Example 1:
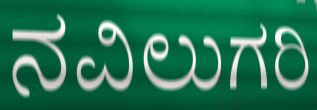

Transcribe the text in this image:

ನವಿಲುಗರಿ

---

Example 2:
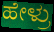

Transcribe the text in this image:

ಹೇಳ್ರು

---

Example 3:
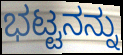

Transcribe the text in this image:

ಭಟ್ಟನನ್ನು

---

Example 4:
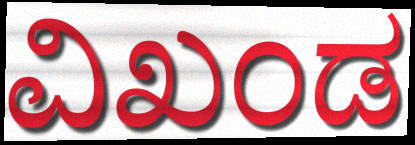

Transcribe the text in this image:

ವಿಖಂಡ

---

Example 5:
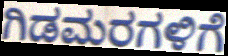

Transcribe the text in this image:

ಗಿಡಮರಗಳಿಗೆ